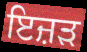
ਇਜ਼ੜ